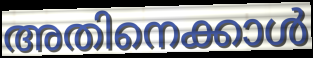
അതിനെക്കാൾ